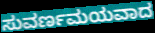
ಸುವರ್ಣಮಯವಾದ